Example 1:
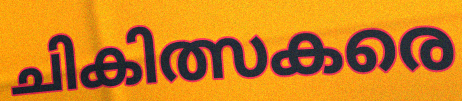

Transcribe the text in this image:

ചികിത്സകരെ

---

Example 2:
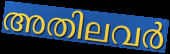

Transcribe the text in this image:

അതിലവർ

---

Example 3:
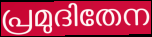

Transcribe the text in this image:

പ്രമുദിതേന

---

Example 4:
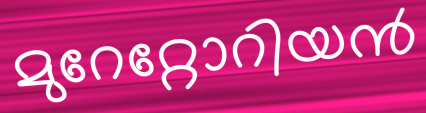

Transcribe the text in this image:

മുറേറ്റോറിയൻ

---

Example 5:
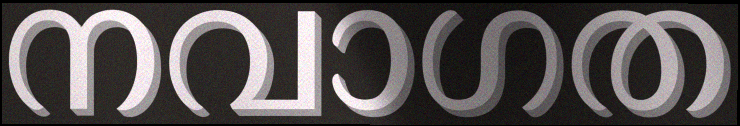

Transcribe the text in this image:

നവാഗത